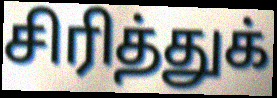
சிரித்துக்